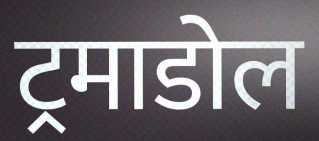
ट्रमाडोल